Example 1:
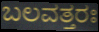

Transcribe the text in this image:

ಬಲವತ್ತರಃ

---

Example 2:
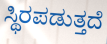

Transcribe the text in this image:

ಸ್ಥಿರಪಡುತ್ತದೆ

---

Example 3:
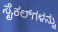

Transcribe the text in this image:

ಸೈಕಲ್‌ಗಳನ್ನು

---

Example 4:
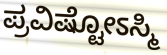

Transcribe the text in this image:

ಪ್ರವಿಷ್ಟೋಽಸ್ಮಿ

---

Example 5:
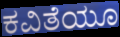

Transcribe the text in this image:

ಕವಿತೆಯೂ